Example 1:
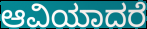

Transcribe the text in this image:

ಆವಿಯಾದರೆ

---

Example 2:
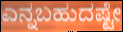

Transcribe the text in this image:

ಎನ್ನಬಹುದಷ್ಟೇ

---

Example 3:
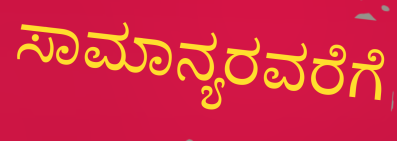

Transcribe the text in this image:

ಸಾಮಾನ್ಯರವರೆಗೆ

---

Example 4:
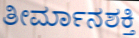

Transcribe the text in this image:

ತೀರ್ಮಾನಶಕ್ತಿ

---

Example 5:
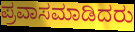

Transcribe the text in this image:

ಪ್ರವಾಸಮಾಡಿದರು